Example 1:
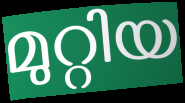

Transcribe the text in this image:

മുറ്റിയ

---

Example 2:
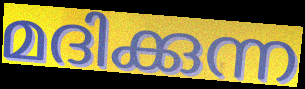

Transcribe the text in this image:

മദിക്കുന്ന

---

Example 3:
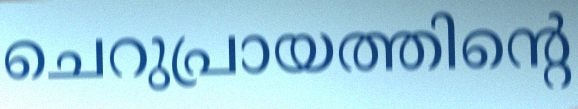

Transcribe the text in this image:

ചെറുപ്രായത്തിന്റെ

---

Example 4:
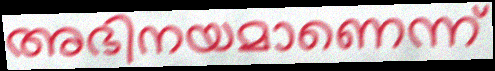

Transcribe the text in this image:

അഭിനയമാണെന്ന്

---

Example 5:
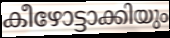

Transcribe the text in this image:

കീഴോട്ടാക്കിയും